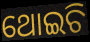
ଥୋଇଚି